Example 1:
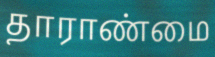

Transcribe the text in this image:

தாராண்மை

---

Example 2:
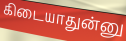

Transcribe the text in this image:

கிடையாதுன்னு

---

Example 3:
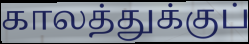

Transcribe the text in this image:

காலத்துக்குப்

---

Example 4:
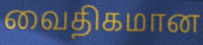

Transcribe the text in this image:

வைதிகமான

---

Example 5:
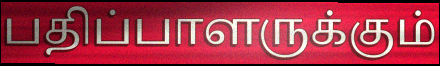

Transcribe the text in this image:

பதிப்பாளருக்கும்